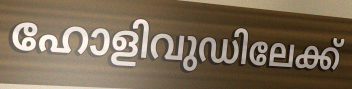
ഹോളിവുഡിലേക്ക്